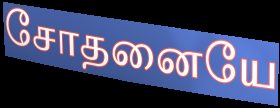
சோதனையே